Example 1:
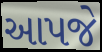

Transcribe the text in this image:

આપજે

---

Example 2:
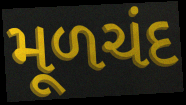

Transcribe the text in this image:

મૂળચંદ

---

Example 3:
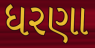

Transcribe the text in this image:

ધરણા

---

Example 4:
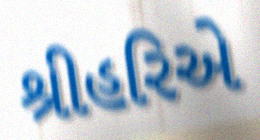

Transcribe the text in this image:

શ્રીહરિએ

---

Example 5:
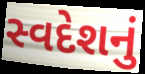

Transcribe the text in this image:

સ્વદેશનું